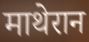
माथेरान